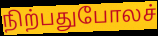
நிற்பதுபோலச்